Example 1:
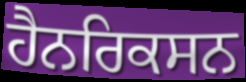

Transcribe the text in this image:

ਹੈਨਰਿਕਸਨ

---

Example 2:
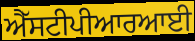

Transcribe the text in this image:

ਐੱਸਟੀਪੀਆਰਆਈ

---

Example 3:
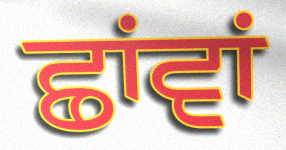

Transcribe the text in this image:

ਛਾਂਵਾਂ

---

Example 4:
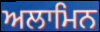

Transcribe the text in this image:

ਅਲਾਮਿਨ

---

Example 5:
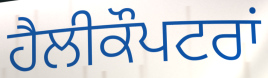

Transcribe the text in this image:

ਹੈਲੀਕੌਪਟਰਾਂ